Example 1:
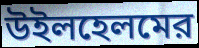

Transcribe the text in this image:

উইলহেলমের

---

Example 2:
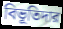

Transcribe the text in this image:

বিভূতিদার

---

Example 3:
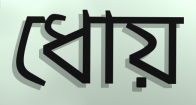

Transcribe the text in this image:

ধোয়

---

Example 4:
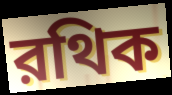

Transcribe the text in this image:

রথিক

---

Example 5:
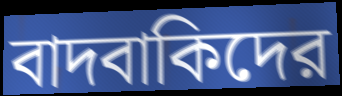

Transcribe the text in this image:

বাদবাকিদের